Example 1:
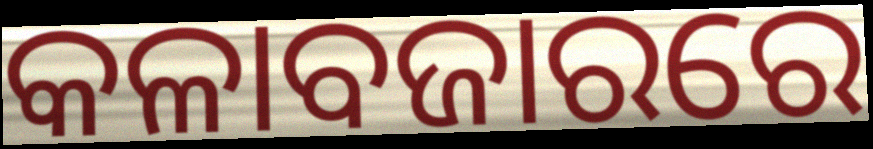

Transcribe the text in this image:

କଳାବଜାରରେ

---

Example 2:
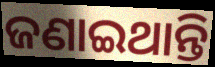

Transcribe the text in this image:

ଜଣାଇଥାନ୍ତି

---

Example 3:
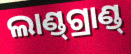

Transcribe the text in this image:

ଲାଣ୍ଡ୍‍ଗ୍ରାଣ୍ଡ୍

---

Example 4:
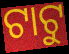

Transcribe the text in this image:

ଟାଟୁ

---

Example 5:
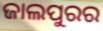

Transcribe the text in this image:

ଜାଲପୁରର